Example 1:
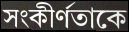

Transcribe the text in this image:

সংকীর্ণতাকে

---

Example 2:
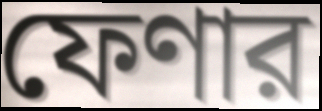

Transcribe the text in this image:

ফেণার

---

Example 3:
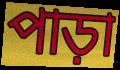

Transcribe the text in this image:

পাড়া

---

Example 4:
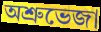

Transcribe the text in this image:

অশ্রুভেজা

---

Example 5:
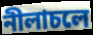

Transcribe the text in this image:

নীলাচলে